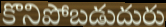
కొనిపోబడుదురు